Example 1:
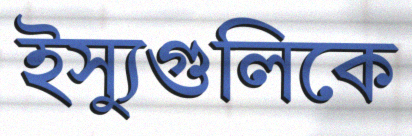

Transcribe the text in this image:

ইস্যুগুলিকে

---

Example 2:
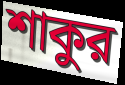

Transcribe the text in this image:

শাকুর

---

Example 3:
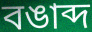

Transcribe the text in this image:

বঙাব্দ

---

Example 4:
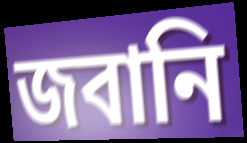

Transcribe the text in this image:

জবানি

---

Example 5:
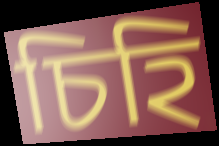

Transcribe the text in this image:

চিহি